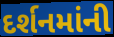
દર્શનમાંની